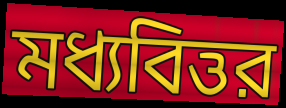
মধ্যবিত্তর